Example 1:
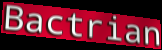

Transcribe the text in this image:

Bactrian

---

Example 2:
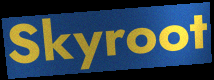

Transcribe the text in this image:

Skyroot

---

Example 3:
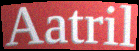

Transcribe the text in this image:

Aatril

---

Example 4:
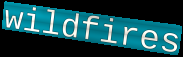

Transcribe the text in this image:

wildfires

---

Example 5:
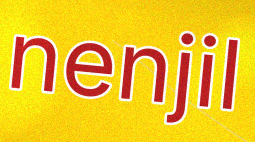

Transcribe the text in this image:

nenjil